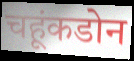
चहूंकडोन